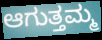
ಆಗುತ್ತಮ್ಮ